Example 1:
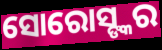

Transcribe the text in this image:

ସୋରୋସ୍ଙ୍କର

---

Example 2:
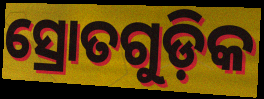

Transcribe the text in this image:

ସ୍ରୋତଗୁଡ଼ିକ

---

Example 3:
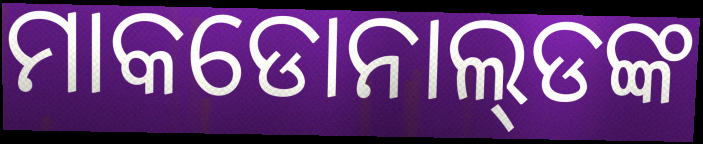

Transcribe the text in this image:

ମାକଡୋନାଲ୍‍ଡଙ୍କ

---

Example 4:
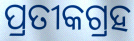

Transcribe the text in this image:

ପ୍ରତୀକଗ୍ରହ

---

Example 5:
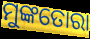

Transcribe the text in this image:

ମୁଙ୍କତୋରା